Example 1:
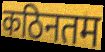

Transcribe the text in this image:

कठिनतम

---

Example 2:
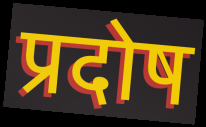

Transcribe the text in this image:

प्रदोष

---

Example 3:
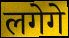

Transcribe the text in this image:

लगेगे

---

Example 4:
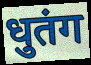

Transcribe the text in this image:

धुतंग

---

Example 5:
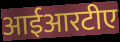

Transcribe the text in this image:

आईआरटीए